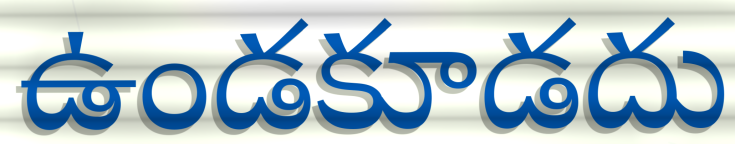
ఉండకూడదు